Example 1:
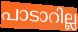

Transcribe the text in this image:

പാടാറില്ല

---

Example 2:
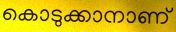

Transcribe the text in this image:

കൊടുക്കാനാണ്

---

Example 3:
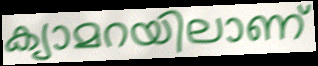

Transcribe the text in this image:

ക്യാമറയിലാണ്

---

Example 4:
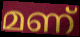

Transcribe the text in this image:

മണ്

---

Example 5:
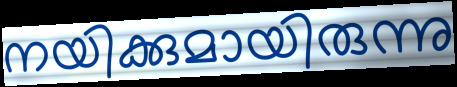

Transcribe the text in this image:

നയിക്കുമായിരുന്നു